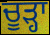
ਚੂੜ੍ਹਾ